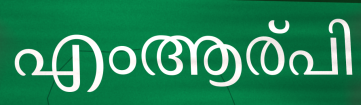
എംആര്പി